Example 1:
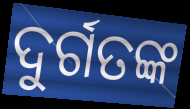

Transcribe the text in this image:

ଦୁର୍ଗତଙ୍କ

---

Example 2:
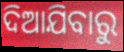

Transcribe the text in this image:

ଦିଆଯିବାରୁ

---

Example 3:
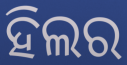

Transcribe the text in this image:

ହିଲର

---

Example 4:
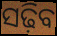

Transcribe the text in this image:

ସଢ଼ିବ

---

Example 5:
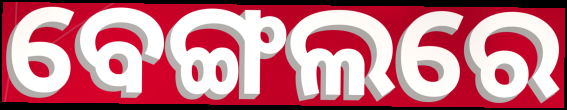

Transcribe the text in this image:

ବେଙ୍ଗଲରେ